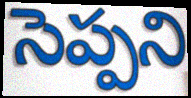
సెప్పని